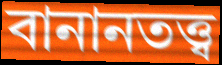
বানানতত্ত্ব